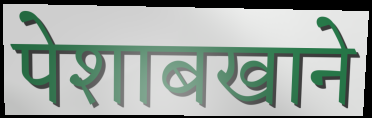
पेशाबखाने